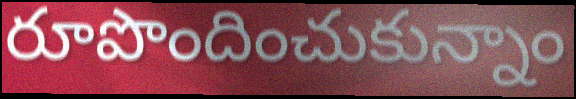
రూపొందించుకున్నాం